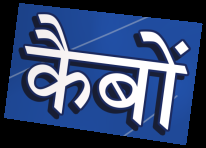
कैबों